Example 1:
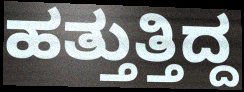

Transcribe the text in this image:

ಹತ್ತುತ್ತಿದ್ದ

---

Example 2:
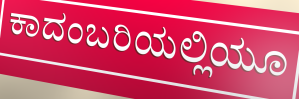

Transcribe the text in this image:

ಕಾದಂಬರಿಯಲ್ಲಿಯೂ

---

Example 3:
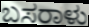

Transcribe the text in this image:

ಬಸರಾಳು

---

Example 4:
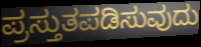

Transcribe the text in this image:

ಪ್ರಸ್ತುತಪಡಿಸುವುದು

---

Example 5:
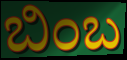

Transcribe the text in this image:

ಬಿಂಬ